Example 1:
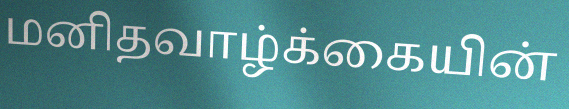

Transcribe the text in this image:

மனிதவாழ்க்கையின்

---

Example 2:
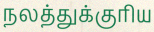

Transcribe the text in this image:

நலத்துக்குரிய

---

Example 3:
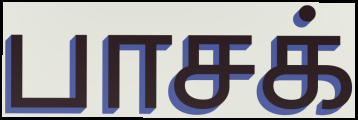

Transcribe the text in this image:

பாசக்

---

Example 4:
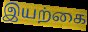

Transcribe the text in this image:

இயற்கை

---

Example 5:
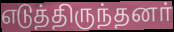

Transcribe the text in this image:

எடுத்திருந்தனர்